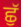
ਛੁੱ